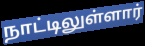
நாட்டிலுள்ளார்